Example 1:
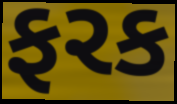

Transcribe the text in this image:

ફરક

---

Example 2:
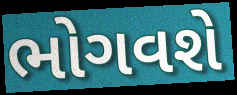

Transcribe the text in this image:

ભોગવશે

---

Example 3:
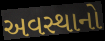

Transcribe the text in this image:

અવસ્થાનો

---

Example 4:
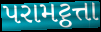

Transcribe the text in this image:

પરામટ્ઠત્તા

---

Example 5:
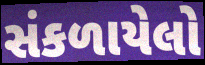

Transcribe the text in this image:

સંકળાયેલો